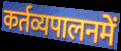
कर्तव्यपालनमें